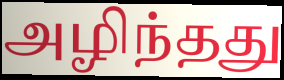
அழிந்தது